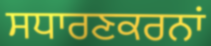
ਸਧਾਰਣਕਰਨਾਂ